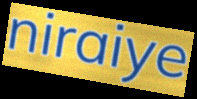
niraiye